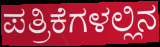
ಪತ್ರಿಕೆಗಳಲ್ಲಿನ